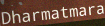
Dharmatmara